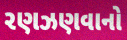
રણઝણવાનો